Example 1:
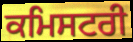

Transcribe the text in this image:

ਕਮਿਸਟਰੀ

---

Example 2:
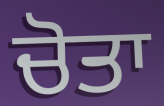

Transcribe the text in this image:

ਚੋਤਾ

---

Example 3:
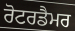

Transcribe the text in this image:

ਰੋਟਰਡੈਮਰ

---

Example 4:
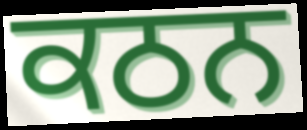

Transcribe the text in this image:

ਕਠਨ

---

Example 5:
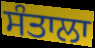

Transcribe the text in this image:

ਸੰਤਾਲਾ